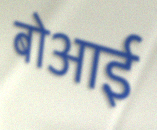
बोआई